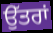
ਉੱਤਰਾਂ